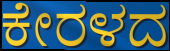
ಕೇರಳದ